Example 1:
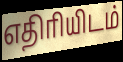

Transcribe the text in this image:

எதிரியிடம்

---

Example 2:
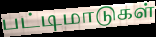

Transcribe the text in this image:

பட்டிமாடுகள்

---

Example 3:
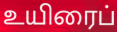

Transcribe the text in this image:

உயிரைப்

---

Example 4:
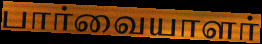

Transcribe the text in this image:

பார்வையாளர்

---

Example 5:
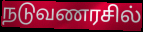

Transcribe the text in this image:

நடுவணரசில்